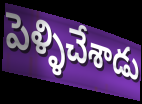
పెళ్ళిచేశాడు